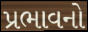
પ્રભાવનો